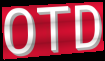
OTD